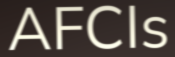
AFCIs